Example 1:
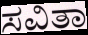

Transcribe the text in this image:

ಸವಿತಾ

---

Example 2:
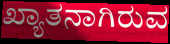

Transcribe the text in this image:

ಖ್ಯಾತನಾಗಿರುವ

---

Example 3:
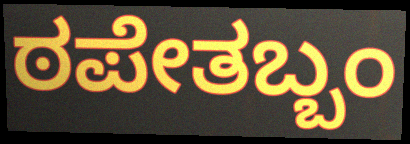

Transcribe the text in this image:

ಠಪೇತಬ್ಬಂ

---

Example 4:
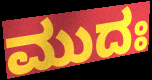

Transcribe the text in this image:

ಮುದಃ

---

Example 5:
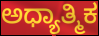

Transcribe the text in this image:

ಅಧ್ಯಾತ್ಮಿಕ